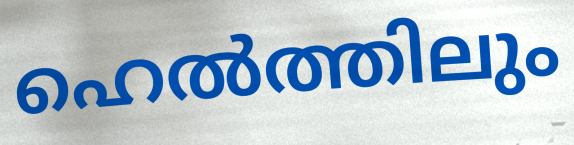
ഹെൽത്തിലും